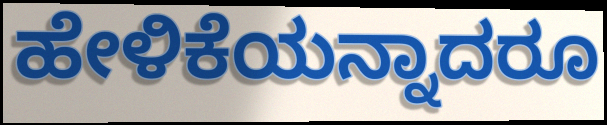
ಹೇಳಿಕೆಯನ್ನಾದರೂ